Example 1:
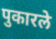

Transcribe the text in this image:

पुकारले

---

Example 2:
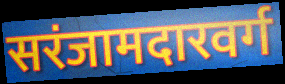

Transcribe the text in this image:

सरंजामदारवर्ग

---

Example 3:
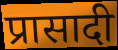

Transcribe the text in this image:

प्रासादी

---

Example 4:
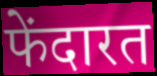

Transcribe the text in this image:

फेंदारत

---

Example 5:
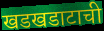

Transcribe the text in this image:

खडखडाटाची